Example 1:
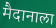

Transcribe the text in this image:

मैदानाला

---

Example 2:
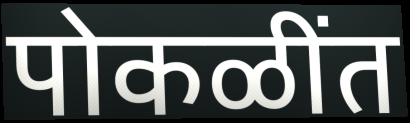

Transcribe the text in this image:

पोकळींत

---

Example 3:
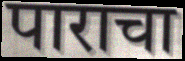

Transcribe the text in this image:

पाराचा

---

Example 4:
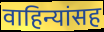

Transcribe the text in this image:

वाहिन्यांसह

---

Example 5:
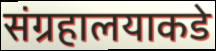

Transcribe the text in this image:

संग्रहालयाकडे